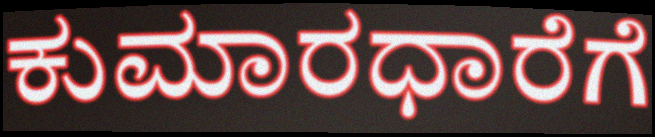
ಕುಮಾರಧಾರೆಗೆ